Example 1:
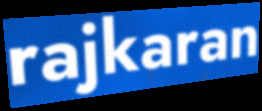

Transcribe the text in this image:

rajkaran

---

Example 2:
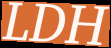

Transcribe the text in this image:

LDH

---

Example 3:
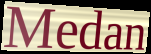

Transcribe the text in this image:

Medan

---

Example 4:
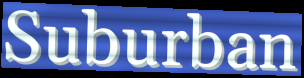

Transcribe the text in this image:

Suburban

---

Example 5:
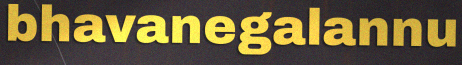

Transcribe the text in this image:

bhavanegalannu